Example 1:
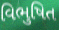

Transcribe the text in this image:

વિભુષિત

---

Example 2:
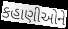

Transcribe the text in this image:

કહાણીઓને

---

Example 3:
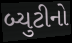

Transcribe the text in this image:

બ્યુટીનો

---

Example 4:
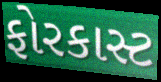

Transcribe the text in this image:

ફોરકાસ્ટ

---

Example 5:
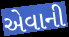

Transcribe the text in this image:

એવાની